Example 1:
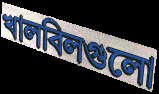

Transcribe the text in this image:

খালবিলগুলো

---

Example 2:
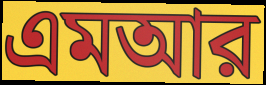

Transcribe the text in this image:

এমআর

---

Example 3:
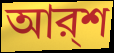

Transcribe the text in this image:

আর্‌শ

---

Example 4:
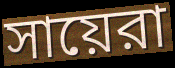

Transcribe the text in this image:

সায়েরা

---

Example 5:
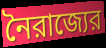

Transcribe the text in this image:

নৈরাজ্যের